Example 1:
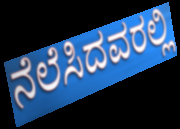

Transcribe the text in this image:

ನೆಲೆಸಿದವರಲ್ಲಿ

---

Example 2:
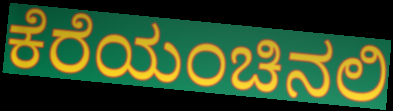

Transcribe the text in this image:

ಕೆರೆಯಂಚಿನಲಿ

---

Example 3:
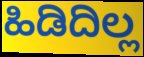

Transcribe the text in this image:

ಹಿಡಿದಿಲ್ಲ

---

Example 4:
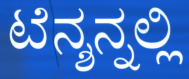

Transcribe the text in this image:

ಟೆನ್ಶನ್ನಲ್ಲಿ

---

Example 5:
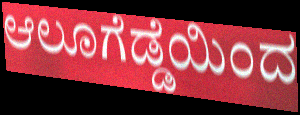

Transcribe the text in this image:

ಆಲೂಗೆಡ್ಡೆಯಿಂದ